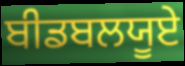
ਬੀਡਬਲਯੂਏ